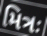
મિત્રઃ